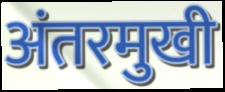
अंतरमुखी